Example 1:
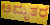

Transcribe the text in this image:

ಅಮೃತರ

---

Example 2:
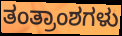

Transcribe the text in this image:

ತಂತ್ರಾಂಶಗಳು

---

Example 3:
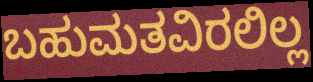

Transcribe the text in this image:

ಬಹುಮತವಿರಲಿಲ್ಲ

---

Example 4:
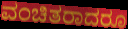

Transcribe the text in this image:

ವಂಚಿತರಾದರೂ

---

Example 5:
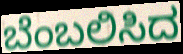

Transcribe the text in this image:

ಬೆಂಬಲಿಸಿದ